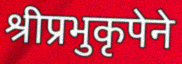
श्रीप्रभुकृपेने